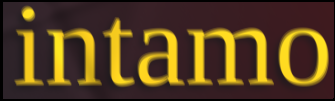
intamo